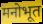
मनोभूत